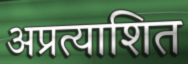
अप्रत्याशित